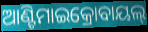
ଆଣ୍ଟିମାଇକ୍ରୋବାୟଲ୍